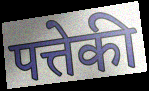
पत्तेकी